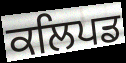
ਕਲਿਪਡ